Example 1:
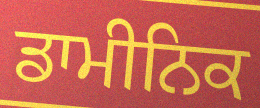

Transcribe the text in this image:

ਡਾਮੀਨਿਕ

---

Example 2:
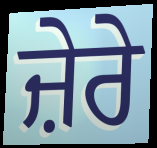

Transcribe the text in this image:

ਜ਼ੇਰੇ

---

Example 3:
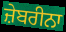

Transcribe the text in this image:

ਜ਼ੇਬਰੀਨਾ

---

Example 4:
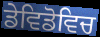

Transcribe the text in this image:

ਡੇਵਿਡੋਵਿਚ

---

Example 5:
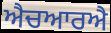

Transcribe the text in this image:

ਐਚਆਰਐ